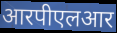
आरपीएलआर